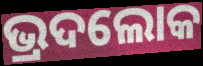
ଭ୍ରଦଲୋକ